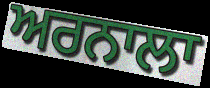
ਅਰਨਾਲਾ